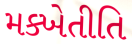
મક્ખેતીતિ